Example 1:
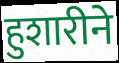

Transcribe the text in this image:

हुशारीने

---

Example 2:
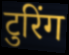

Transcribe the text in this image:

टुरिंग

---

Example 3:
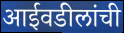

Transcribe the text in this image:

आईवडीलांची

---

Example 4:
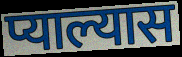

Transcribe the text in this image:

प्याल्यास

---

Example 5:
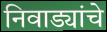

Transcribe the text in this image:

निवाड्यांचे